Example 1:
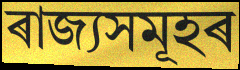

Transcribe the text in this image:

ৰাজ্যসমূহৰ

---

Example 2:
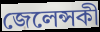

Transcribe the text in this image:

জেলেন্সকী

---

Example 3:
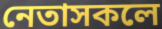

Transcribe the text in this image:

নেতাসকলে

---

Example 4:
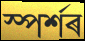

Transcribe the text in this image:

স্পৰ্শৰ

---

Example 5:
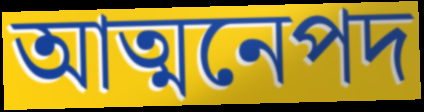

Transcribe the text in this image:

আত্মনেপদ